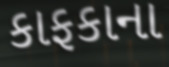
કાફકાના